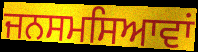
ਜਨਸਮਸਿਆਵਾਂ